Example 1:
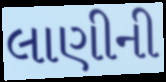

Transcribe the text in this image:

લાણીની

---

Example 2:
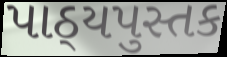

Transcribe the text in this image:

પાઠ્યપુસ્તક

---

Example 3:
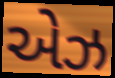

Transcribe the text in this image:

એઝ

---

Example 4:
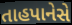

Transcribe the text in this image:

તાહપાનેસે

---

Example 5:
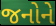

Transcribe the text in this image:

જનોને